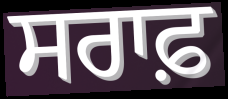
ਸਰਾਫ਼